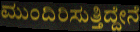
ಮುಂದಿರಿಸುತ್ತಿದ್ದೇನೆ